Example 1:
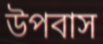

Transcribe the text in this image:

উপবাস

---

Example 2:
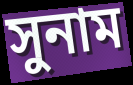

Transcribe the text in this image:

সুনাম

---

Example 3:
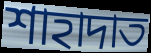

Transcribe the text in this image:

শাহাদাত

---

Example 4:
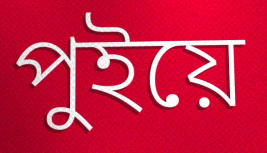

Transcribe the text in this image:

পুইয়ে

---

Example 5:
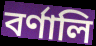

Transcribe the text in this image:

বর্ণালি